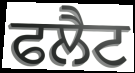
ਫਲੈਟ